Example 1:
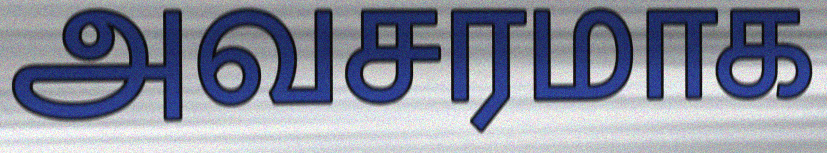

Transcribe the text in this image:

அவசரமாக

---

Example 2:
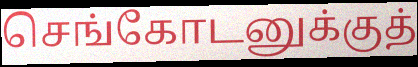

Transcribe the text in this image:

செங்கோடனுக்குத்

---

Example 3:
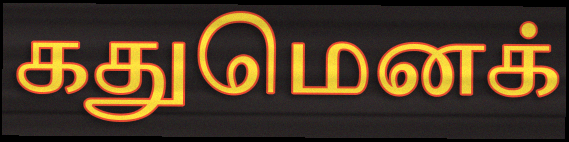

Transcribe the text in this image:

கதுமெனக்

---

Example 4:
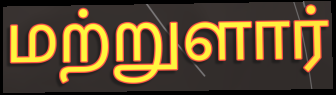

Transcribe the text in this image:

மற்றுளார்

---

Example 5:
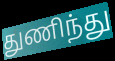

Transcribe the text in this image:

துணிந்து